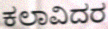
ಕಲಾವಿದರ